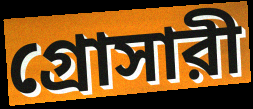
গ্রোসারী